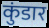
कुंडार